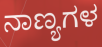
ನಾಣ್ಯಗಳ